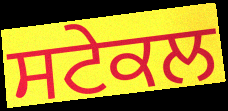
ਸਟੇਕਲ